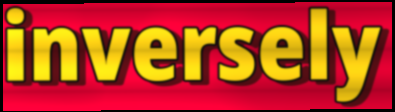
inversely